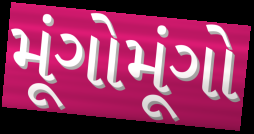
મૂંગોમૂંગો